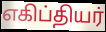
எகிப்தியர்